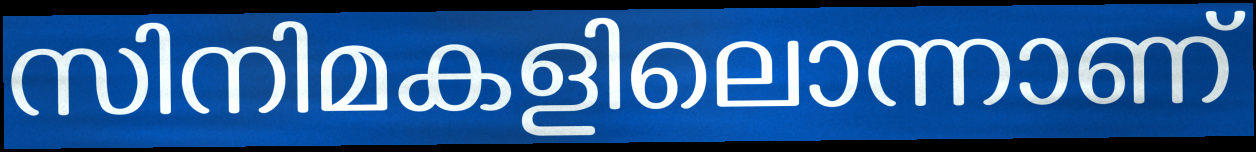
സിനിമകളിലൊന്നാണ്